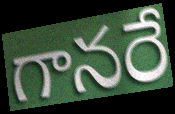
గానరే